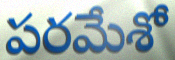
పరమేశో